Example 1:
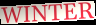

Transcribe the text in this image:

WINTER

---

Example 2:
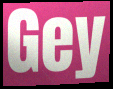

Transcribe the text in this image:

Gey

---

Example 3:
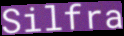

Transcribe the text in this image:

Silfra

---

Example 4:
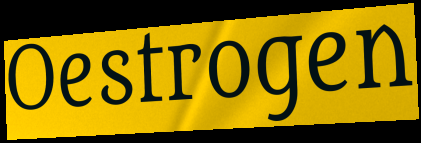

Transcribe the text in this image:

Oestrogen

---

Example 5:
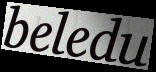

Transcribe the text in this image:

beledu